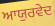
ਆਯੁਰਵੇਦ